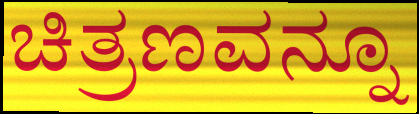
ಚಿತ್ರಣವನ್ನೂ